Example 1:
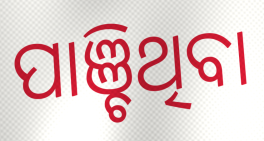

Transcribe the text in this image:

ପାଞ୍ଚିଥିବା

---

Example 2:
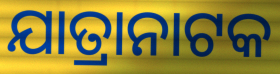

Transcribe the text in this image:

ଯାତ୍ରାନାଟକ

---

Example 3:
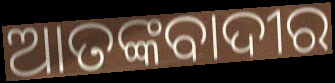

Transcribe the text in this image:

ଆତଙ୍କବାଦୀର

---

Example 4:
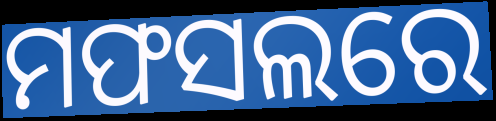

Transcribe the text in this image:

ମଫସଲରେ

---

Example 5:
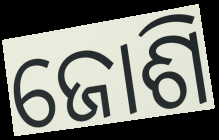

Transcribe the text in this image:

ଜୋଶି